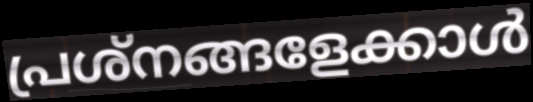
പ്രശ്നങ്ങളേക്കാൾ